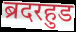
ब्रदरहुड